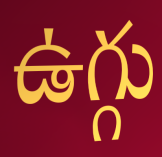
ఉగ్గు